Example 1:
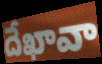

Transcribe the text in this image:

దేఖావా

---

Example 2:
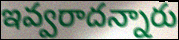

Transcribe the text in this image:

ఇవ్వరాదన్నారు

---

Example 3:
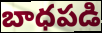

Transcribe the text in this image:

బాధపడి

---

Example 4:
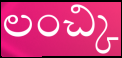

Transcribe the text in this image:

లంచ్కి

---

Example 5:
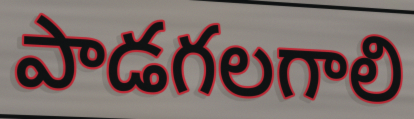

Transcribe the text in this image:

పాడగలగాలి